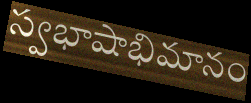
స్వభాషాభిమానం